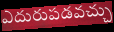
ఎదురుపడవచ్చు